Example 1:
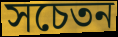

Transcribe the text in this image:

সচেতন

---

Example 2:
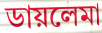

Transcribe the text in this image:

ডায়লেমা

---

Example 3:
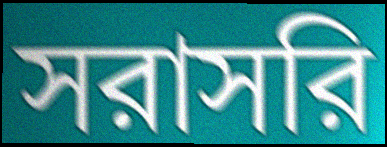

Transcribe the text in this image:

সরাসরি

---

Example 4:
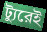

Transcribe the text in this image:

ট্যুরেই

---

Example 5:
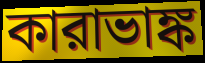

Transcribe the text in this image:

কারাভাঙ্ক